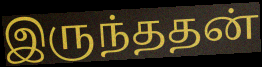
இருந்ததன்